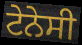
ਟੇਨੇਸੀ